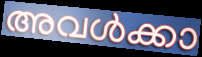
അവൾക്കാ